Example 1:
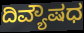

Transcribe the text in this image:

ದಿವ್ಯೌಷಧ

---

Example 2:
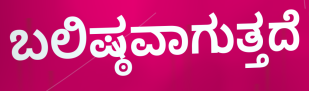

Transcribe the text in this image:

ಬಲಿಷ್ಠವಾಗುತ್ತದೆ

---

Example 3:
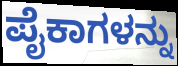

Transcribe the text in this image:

ಪೈಕಾಗಳನ್ನು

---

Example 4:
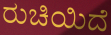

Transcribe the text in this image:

ರುಚಿಯಿದೆ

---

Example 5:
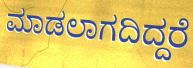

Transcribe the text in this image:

ಮಾಡಲಾಗದಿದ್ದರೆ